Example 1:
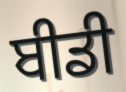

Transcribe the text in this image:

ਬੀਡੀ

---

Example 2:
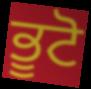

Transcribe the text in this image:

ਭੂਟੋ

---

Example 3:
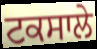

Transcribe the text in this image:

ਟਕਸਾਲੇ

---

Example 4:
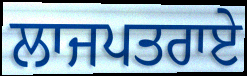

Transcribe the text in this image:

ਲਾਜਪਤਰਾਏ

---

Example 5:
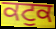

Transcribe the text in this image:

ਕਟੁਕ